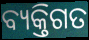
ବ୍ୟକ୍ତିଗତ